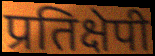
प्रतिक्षेपी